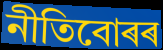
নীতিবোৰৰ